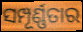
ସମ୍ପୂର୍ଣ୍ଣତାର